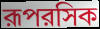
রূপরসিক